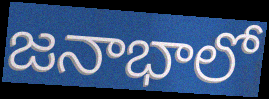
జనాభాలో